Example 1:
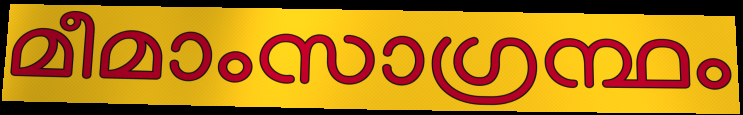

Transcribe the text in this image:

മീമാംസാഗ്രന്ഥം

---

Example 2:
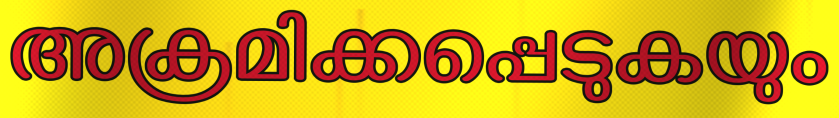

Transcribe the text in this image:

അക്രമിക്കപ്പെടുകയും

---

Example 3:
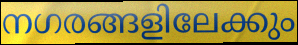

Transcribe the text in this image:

നഗരങ്ങളിലേക്കും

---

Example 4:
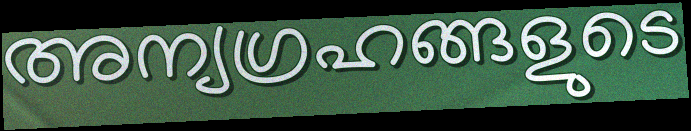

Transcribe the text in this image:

അന്യഗ്രഹങ്ങളുടെ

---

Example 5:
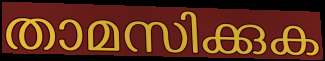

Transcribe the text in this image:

താമസിക്കുക